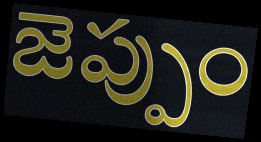
జెప్పుం